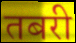
तबरी